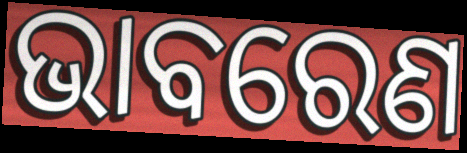
ଭାବରେଣ